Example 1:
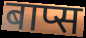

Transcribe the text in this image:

बाप्स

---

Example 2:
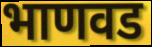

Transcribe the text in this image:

भाणवड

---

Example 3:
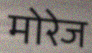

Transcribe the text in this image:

मोरेज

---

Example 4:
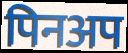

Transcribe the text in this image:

पिनअप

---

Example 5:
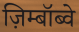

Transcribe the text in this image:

ज़िम्बॉब्वे